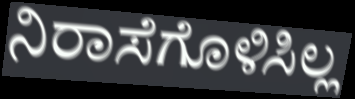
ನಿರಾಸೆಗೊಳಿಸಿಲ್ಲ